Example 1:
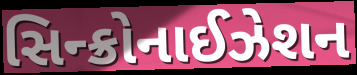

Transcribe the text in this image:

સિન્ક્રોનાઈઝેશન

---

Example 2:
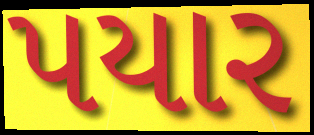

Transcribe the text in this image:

પયાર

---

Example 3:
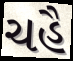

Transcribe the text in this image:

ચહૈ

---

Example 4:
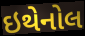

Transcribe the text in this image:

ઇથેનોલ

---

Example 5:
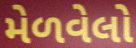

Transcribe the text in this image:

મેળવેલો